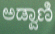
ಅಡ್ವಾಣಿ